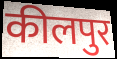
कीलपुर